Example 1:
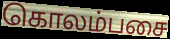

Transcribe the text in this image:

கொலம்பசை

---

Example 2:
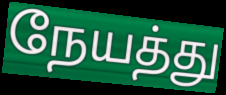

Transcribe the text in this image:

நேயத்து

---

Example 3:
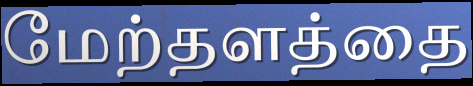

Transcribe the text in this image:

மேற்தளத்தை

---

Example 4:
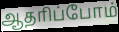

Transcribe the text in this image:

ஆதரிப்போம்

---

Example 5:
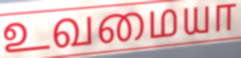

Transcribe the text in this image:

உவமையா